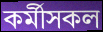
কৰ্মীসকল